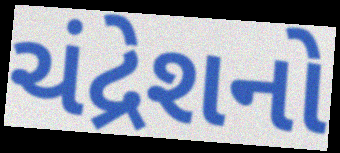
ચંદ્રેશનો